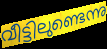
വീട്ടിലുണ്ടെന്നു